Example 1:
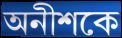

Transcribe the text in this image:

অনীশকে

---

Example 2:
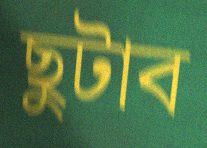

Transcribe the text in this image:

ছুটাব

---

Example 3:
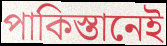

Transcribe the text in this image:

পাকিস্তানেই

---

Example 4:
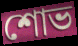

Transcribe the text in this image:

শোভ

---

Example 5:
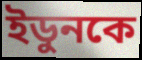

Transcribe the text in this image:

ইডুনকে